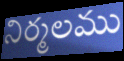
నిర్మలము